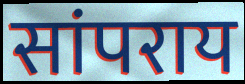
सांपराय